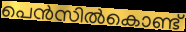
പെൻസിൽകൊണ്ട്